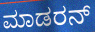
ಮಾಡರನ್